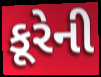
કૂરેની